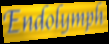
Endolymph